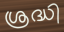
ശ്രദ്ധി